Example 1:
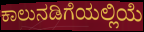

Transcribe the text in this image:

ಕಾಲುನಡಿಗೆಯಲ್ಲಿಯೆ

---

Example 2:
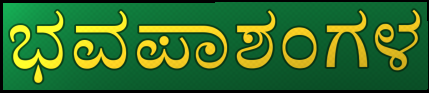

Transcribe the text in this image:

ಭವಪಾಶಂಗಳ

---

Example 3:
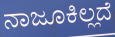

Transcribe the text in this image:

ನಾಜೂಕಿಲ್ಲದೆ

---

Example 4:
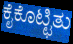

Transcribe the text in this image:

ಕೈಕೊಟ್ಟಿತು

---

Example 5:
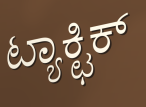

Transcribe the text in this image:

ಟ್ಯಾಕ್ಟಿಕ್